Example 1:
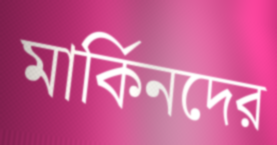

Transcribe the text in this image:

মার্কিনদের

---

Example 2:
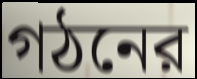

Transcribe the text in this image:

গঠনের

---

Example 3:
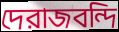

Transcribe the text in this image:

দেরাজবন্দি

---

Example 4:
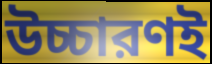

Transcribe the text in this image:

উচ্চারণই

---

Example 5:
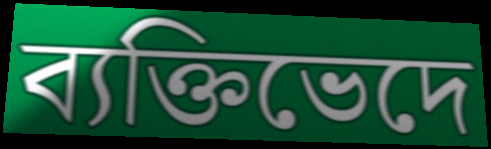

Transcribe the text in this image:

ব্যক্তিভেদে